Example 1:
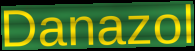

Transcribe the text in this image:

Danazol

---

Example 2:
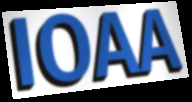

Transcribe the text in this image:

IOAA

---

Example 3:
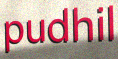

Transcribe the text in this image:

pudhil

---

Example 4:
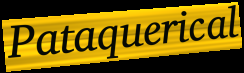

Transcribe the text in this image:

Pataquerical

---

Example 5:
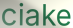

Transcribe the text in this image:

ciake